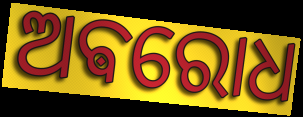
ଅଵରୋଧ